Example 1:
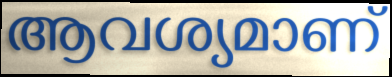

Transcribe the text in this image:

ആവശ്യമാണ്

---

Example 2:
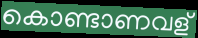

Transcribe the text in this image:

കൊണ്ടാണവള്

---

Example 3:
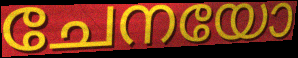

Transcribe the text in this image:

ചേനയോ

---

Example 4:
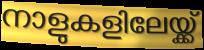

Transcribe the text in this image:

നാളുകളിലേയ്ക്ക്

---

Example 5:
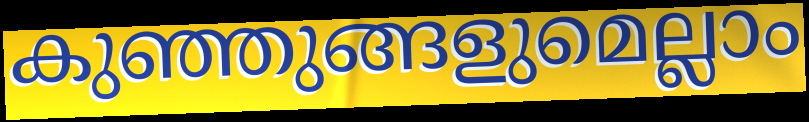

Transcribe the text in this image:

കുഞ്ഞുങ്ങളുമെല്ലാം